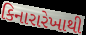
કિનારારેખાથી